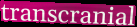
transcranial